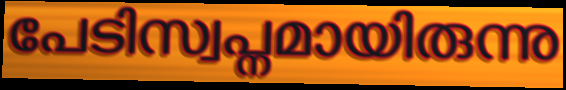
പേടിസ്വപ്നമായിരുന്നു